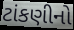
ટાંકણીનો